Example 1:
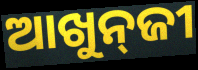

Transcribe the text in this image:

ଆଖୁନ୍‍ଜୀ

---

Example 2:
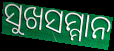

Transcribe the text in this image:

ସୁଖସମ୍ମାନ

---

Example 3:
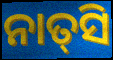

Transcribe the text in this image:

ନାତ୍‌ସି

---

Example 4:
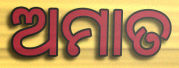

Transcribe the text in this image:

ଅମାତ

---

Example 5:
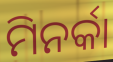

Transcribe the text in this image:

ମିନର୍କା